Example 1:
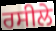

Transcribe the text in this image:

ਰਸੀਲੇ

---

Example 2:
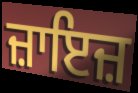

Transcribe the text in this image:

ਜ਼ਾਇਜ਼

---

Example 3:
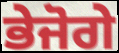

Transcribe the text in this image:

ਭੇਜੋਗੇ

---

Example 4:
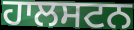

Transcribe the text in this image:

ਹਾਲਸਟਨ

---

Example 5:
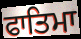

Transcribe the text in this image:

ਫਾਤਿਮਾ